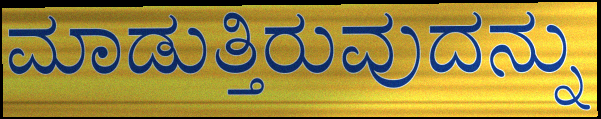
ಮಾಡುತ್ತಿರುವುದನ್ನು